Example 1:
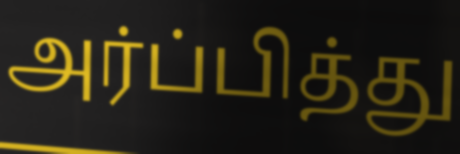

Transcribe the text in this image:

அர்ப்பித்து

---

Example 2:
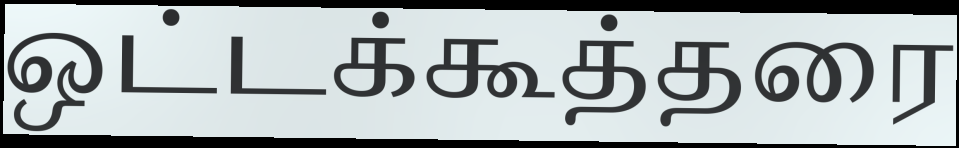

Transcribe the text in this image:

ஒட்டக்கூத்தரை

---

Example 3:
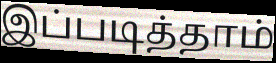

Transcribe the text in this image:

இப்படித்தாம்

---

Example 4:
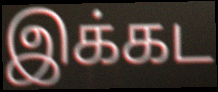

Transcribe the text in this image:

இக்கட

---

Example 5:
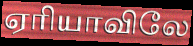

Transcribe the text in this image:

ஏரியாவிலே